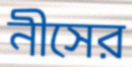
নীসের